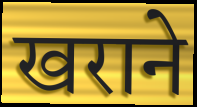
खराने